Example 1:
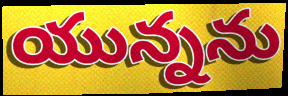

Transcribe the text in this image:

యున్నను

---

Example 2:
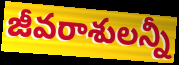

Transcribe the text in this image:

జీవరాశులన్నీ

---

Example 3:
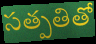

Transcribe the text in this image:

సత్పతితో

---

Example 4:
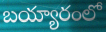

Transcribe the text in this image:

బయ్యారంలో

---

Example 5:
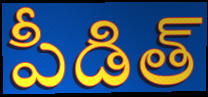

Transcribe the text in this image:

పీడిత్